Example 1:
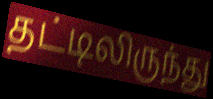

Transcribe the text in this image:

தட்டிலிருந்து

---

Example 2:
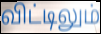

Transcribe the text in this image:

விட்டிலும்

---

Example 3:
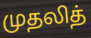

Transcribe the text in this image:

முதலித்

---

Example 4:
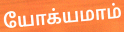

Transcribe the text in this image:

யோக்யமாம்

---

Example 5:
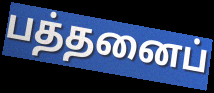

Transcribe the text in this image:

பத்தனைப்